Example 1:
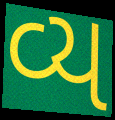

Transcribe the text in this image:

વ્ય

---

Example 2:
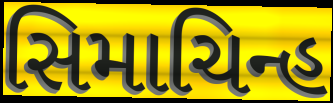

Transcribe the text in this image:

સિમાચિન્હ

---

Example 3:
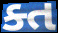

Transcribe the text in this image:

ક્ત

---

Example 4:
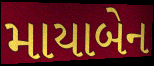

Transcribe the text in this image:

માયાબેન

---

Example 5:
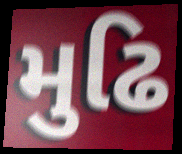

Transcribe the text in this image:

મુઢિ